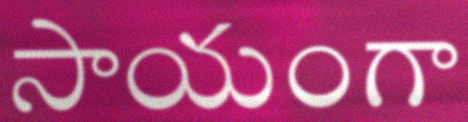
సాయంగా